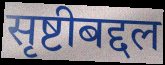
सृष्टीबद्दल